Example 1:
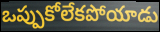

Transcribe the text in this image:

ఒప్పుకోలేకపోయాడు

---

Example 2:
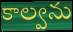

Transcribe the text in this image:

కాల్వను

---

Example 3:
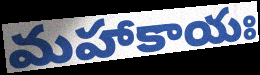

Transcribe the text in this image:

మహాకాయః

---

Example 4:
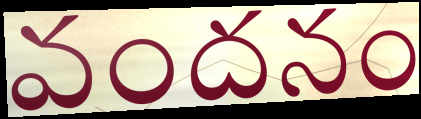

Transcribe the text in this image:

వందనం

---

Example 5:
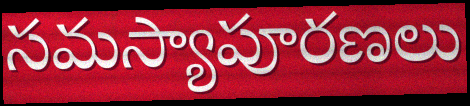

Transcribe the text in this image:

సమస్యాపూరణలు